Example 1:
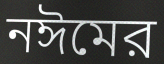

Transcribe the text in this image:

নঈমের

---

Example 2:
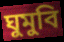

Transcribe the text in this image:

ঘুমুবি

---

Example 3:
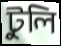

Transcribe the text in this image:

টুলি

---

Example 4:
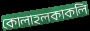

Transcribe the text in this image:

কোলাহলকাকলি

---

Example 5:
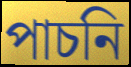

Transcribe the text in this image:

পাচনি